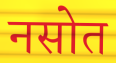
नसोत